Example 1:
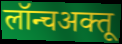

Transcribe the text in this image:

लॉन्चअक्तू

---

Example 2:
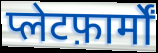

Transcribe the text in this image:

प्लेटफ़ार्मों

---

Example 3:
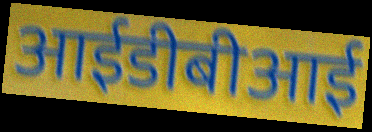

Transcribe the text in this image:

आईडीबीआई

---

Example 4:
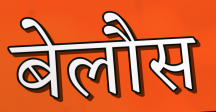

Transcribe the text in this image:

बेलौस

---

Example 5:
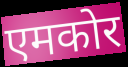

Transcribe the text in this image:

एमकोर